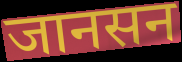
जानसन